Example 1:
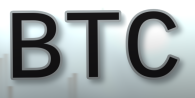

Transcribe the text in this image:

BTC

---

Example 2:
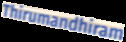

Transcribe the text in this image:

Thirumandhiram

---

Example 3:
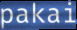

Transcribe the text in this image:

pakai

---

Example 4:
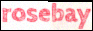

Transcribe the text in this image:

rosebay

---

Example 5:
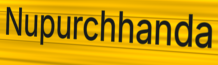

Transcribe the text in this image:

Nupurchhanda